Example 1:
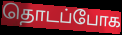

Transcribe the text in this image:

தொடப்போக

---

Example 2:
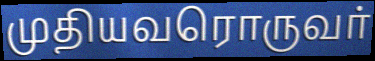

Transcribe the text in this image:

முதியவரொருவர்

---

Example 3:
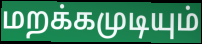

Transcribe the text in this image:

மறக்கமுடியும்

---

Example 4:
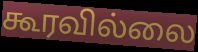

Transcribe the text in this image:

கூரவில்லை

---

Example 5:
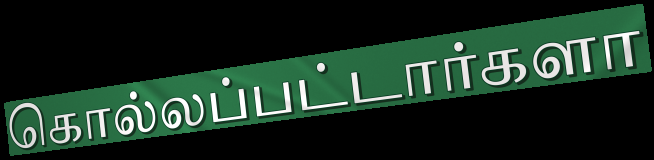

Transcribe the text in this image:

கொல்லப்பட்டார்களா